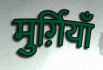
मुर्ग़ियाँ